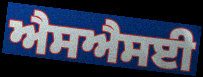
ਐਸਐਸਈ